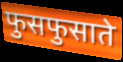
फुसफुसाते